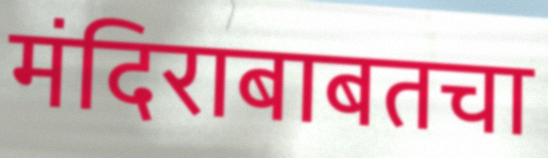
मंदिराबाबतचा